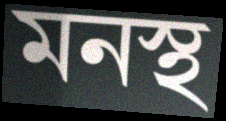
মনস্থ